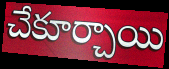
చేకూర్చాయి